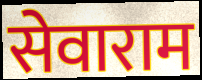
सेवाराम